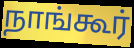
நாங்கூர்